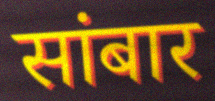
सांबार